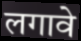
लगावे